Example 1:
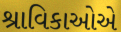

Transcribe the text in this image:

શ્રાવિકાઓએ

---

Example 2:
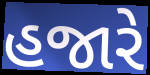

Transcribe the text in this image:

હજારે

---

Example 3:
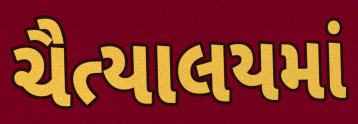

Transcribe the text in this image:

ચૈત્યાલયમાં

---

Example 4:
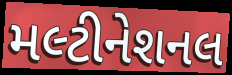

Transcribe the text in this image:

મલ્ટીનેશનલ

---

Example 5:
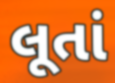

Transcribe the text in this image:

લૂતાં